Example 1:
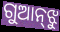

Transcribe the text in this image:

ଗୁଆନ୍‌ଝୁ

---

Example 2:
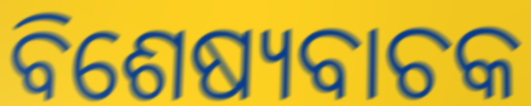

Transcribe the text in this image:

ବିଶେଷ୍ୟବାଚକ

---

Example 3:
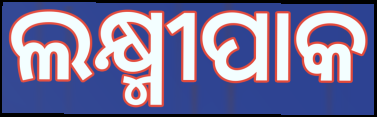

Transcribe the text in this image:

ଲକ୍ଷ୍ମୀପାକ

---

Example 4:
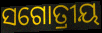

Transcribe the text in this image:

ସଗୋତ୍ରୀୟ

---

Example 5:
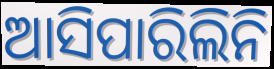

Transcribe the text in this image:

ଆସିପାରିଲିନି